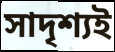
সাদৃশ্যই